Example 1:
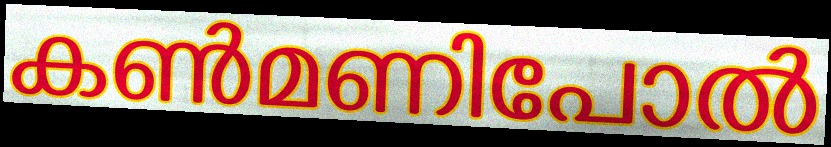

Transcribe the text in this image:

കൺമണിപോൽ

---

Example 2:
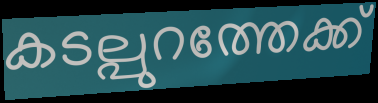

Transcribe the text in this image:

കടല്പുറത്തേക്ക്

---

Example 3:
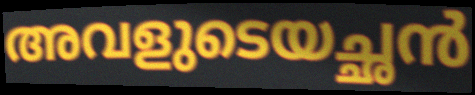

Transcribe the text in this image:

അവളുടെയച്ഛൻ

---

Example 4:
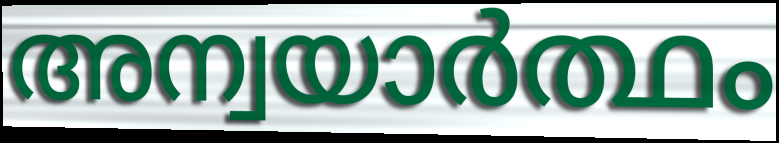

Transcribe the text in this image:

അന്വയാർത്ഥം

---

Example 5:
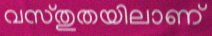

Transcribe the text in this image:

വസ്തുതയിലാണ്